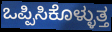
ಒಪ್ಪಿಸಿಕೊಳ್ಳುತ್ತ